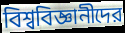
বিশ্ববিজ্ঞানীদের